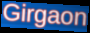
Girgaon